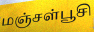
மஞ்சள்பூசி